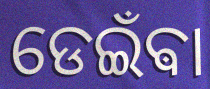
ଡେଇଁଵା